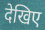
देखिए